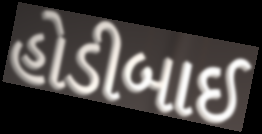
હોડીબાઈ